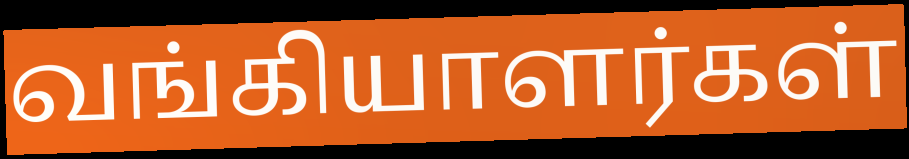
வங்கியாளர்கள்